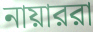
নায়াররা